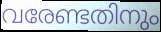
വരേണ്ടതിനും